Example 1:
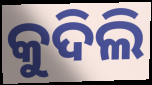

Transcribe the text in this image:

କୁଦିଲି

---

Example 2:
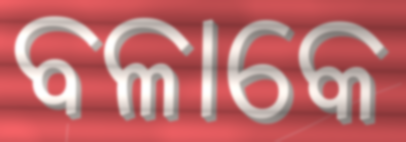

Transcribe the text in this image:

ବଳାକେ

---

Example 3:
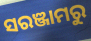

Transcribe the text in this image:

ସରଞ୍ଜାମରୁ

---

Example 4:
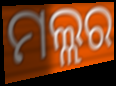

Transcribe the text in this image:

ମଲ୍ଲର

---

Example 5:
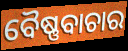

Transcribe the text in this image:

ବୈଷ୍ଣବାଚାର